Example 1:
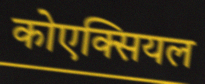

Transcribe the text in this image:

कोएक्सियल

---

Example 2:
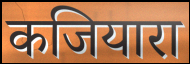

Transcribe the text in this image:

कजियारा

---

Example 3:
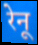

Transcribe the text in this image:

रेनू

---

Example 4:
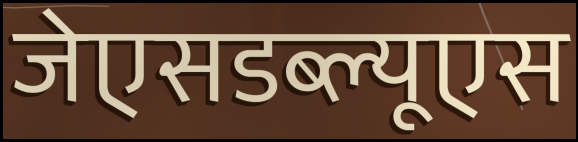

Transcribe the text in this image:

जेएसडब्ल्यूएस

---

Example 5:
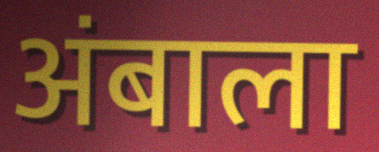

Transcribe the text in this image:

अंबाला